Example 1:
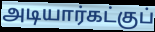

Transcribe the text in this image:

அடியார்கட்குப்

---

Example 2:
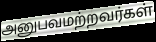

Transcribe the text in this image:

அனுபவமற்றவர்கள்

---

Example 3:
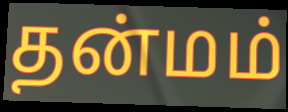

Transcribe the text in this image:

தன்மம்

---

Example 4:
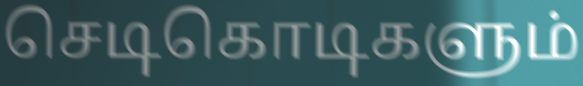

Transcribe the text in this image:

செடிகொடிகளும்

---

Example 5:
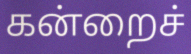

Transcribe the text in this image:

கன்றைச்